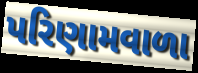
પરિણામવાળા